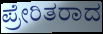
ಪ್ರೇರಿತರಾದ